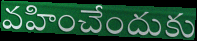
వహించేందుకు